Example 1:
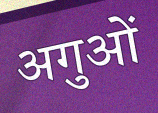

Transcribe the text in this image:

अगुओं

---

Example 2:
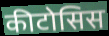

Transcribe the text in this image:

कीटोसिस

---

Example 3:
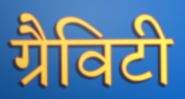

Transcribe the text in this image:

ग्रैविटी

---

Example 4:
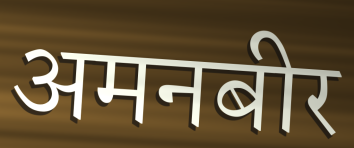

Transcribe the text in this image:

अमनबीर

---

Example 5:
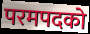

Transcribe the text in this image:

परमपदको